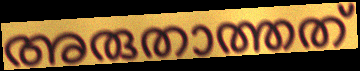
അരുതാത്തത്